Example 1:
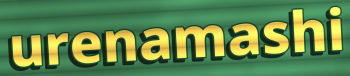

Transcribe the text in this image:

urenamashi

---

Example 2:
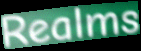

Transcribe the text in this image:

Realms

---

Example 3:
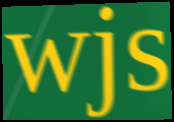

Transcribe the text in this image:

wjs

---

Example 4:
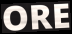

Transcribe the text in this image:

ORE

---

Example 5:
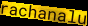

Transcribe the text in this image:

rachanalu